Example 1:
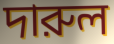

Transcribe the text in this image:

দারুল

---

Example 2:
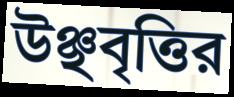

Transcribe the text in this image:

উঞ্ছবৃত্তির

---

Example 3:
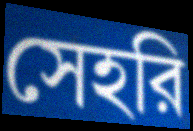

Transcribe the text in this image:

সেহরি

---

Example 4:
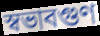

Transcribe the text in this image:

স্বভাবগুণ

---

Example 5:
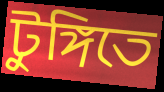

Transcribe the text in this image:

টুঙ্গিতে